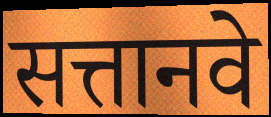
सत्तानवे